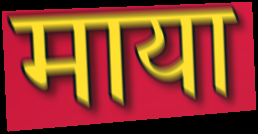
माया